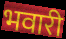
भवारी